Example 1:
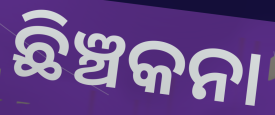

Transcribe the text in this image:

ଛିଞ୍ଚକନା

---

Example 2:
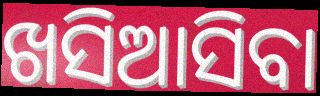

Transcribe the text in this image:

ଖସିଆସିବା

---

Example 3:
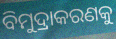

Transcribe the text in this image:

ବିମୁଦ୍ରାକରଣକୁ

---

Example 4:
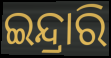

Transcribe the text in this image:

ଇନ୍ଦ୍ରାରି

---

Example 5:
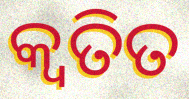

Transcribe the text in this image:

କ୍ୱତିତ